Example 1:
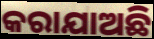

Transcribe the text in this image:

କରାଯାଅଛି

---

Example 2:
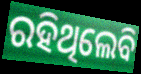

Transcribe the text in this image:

ରହିଥିଲେବି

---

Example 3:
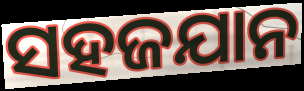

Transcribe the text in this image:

ସହଜଯାନ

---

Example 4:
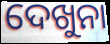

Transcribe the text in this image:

ଦେଖୁନା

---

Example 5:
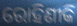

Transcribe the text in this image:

ରୋହିଣୀକି